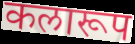
कलारूप